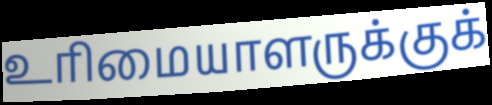
உரிமையாளருக்குக்